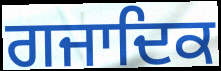
ਗਜਾਦਿਕ